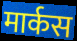
मार्कस